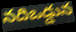
నదిఒడ్డున